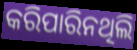
କରିପାରିନଥିଲି